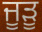
ਜੂੜੂ